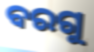
ବରଗୁ